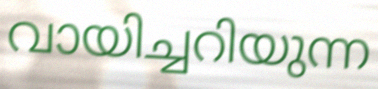
വായിച്ചറിയുന്ന